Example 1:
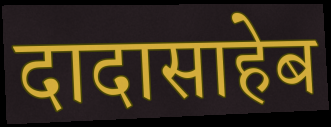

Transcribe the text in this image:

दादासाहेब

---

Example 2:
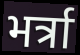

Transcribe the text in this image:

भर्त्रा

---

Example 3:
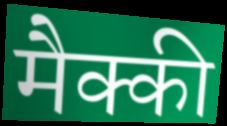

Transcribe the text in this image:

मैक्की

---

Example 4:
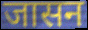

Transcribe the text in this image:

जासन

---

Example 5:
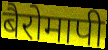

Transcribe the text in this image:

बैरोमापी